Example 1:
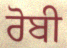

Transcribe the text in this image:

ਰੋਬੀ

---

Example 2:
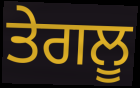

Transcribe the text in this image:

ਤੇਗਲੂ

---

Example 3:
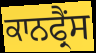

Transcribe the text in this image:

ਕਾਨਫ੍ਰੈਂਸ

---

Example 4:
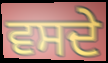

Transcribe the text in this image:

ਵਸਦੇ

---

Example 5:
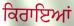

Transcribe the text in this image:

ਕਿਰਾਇਆਂ